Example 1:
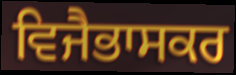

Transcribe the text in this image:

ਵਿਜੈਭਾਸਕਰ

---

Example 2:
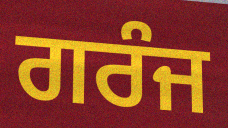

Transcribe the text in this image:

ਗਰੰਜ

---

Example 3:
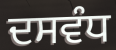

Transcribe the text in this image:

ਦਸਵੰਧ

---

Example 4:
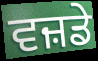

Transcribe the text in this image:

ਵਜ਼ਡੇ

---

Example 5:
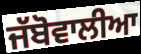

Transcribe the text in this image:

ਜੱਬੋਵਾਲੀਆ